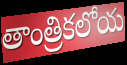
తాంత్రికలోయ